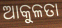
ଆକୁଳତା